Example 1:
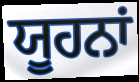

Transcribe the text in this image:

ਯੂਹਨਾਂ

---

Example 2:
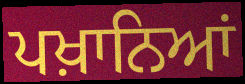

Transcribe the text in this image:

ਪਖ਼ਾਨਿਆਂ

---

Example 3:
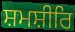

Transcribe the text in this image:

ਸ਼ਮਸ਼ੀਰਿ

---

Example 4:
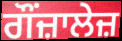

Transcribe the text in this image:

ਗੌਂਜ਼ਾਲੇਜ਼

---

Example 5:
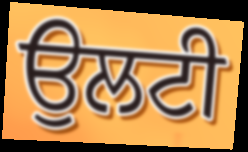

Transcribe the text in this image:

ਉਲਟੀ